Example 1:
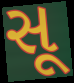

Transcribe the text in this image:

સૂ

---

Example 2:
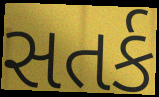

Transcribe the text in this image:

સતર્ક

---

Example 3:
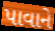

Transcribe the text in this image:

પાવાને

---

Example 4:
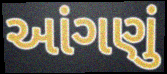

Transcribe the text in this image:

આંગણું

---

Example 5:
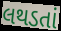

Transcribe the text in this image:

લથડતાં